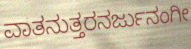
ವಾತನುತ್ತರನರ್ಜುನಂಗೀ